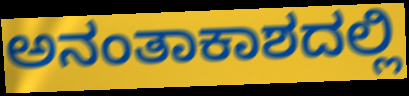
ಅನಂತಾಕಾಶದಲ್ಲಿ